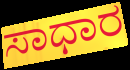
ಸಾಧಾರ